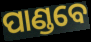
ପାଣ୍ଡବେ